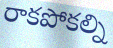
రాకపోకల్ని